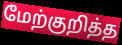
மேற்குறித்த